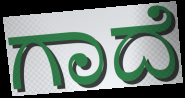
ಗಾದೆ